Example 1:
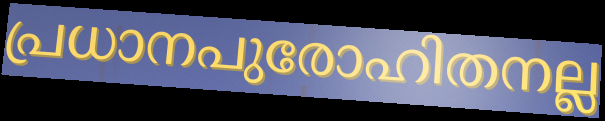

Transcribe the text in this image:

പ്രധാനപുരോഹിതനല്ല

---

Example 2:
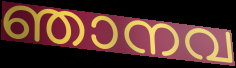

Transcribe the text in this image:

ഞാനവ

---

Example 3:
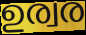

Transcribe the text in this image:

ഉര്വര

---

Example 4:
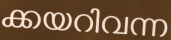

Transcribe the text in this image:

ക്കയറിവന്ന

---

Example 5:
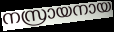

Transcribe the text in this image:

നസ്രായനായ